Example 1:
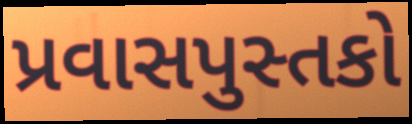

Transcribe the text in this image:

પ્રવાસપુસ્તકો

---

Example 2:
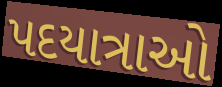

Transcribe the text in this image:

પદયાત્રાઓ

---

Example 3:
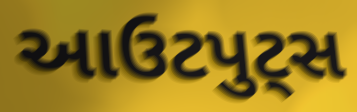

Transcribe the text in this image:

આઉટપુટ્સ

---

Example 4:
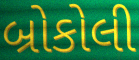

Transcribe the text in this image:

બ્રોકોલી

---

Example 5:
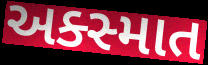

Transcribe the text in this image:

અક્સ્માત